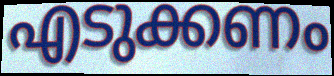
എടുക്കണം